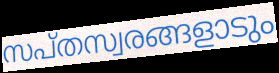
സപ്തസ്വരങ്ങളാടും